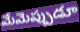
మేమెప్పుడూ